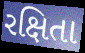
રક્ષિતા